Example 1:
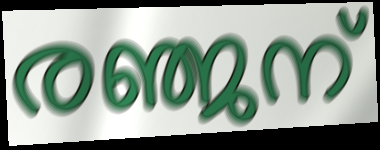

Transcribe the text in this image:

രഞ്ജന്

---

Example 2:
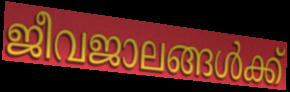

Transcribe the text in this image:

ജീവജാലങ്ങൾക്ക്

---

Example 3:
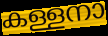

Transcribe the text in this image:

കള്ളനാ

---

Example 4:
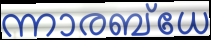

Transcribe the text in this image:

ന്നാരബ്ധേ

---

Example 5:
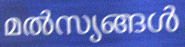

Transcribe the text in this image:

മൽസ്യങ്ങൾ